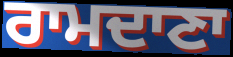
ਰਾਮਦਾਣਾ